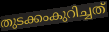
തുടക്കംകുറിച്ചത്